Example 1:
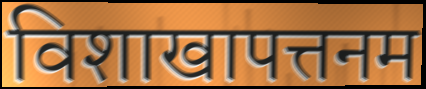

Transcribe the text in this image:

विशाखापत्तनम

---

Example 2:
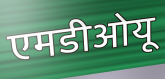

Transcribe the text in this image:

एमडीओयू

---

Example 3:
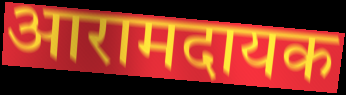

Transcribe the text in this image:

आरामदायक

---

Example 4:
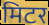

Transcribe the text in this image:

मिटर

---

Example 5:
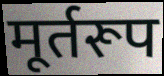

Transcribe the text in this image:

मूर्तरूप